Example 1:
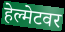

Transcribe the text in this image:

हेल्मेटवर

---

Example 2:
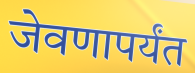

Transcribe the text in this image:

जेवणापर्यंत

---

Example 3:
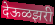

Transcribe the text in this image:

देऊळझरी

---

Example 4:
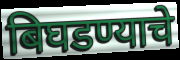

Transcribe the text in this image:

बिघडण्याचे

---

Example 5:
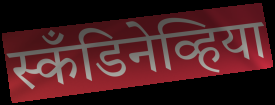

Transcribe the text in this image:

स्कँडिनेव्हिया